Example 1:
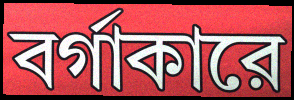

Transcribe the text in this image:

বর্গাকারে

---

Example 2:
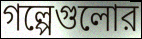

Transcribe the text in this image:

গল্পেগুলোর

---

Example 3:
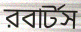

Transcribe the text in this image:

রবার্টস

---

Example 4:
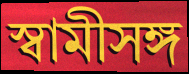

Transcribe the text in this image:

স্বামীসঙ্গ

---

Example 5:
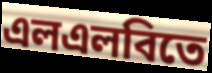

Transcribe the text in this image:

এলএলবিতে